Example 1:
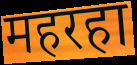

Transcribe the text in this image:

महरहा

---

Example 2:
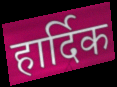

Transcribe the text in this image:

हार्दिक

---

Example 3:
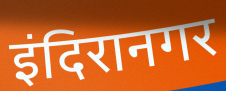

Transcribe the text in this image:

इंदिरानगर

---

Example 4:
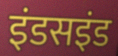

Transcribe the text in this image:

इंडसइंड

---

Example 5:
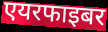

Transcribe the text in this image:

एयरफाइबर